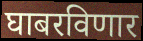
घाबरविणार